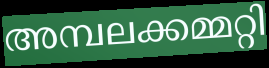
അമ്പലക്കമ്മറ്റി